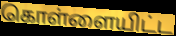
கொள்ளையிட்ட